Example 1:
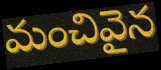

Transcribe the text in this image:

మంచివైన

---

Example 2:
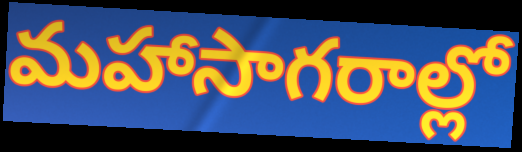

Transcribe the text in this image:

మహాసాగరాల్లో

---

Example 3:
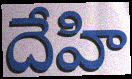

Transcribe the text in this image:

దేహి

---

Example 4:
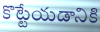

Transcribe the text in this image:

కొట్టేయడానికి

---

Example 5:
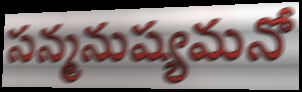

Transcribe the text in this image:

సన్మనుష్యమనో